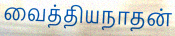
வைத்தியநாதன்